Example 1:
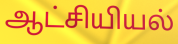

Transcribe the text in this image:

ஆட்சியியல்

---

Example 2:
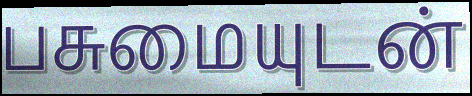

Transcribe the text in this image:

பசுமையுடன்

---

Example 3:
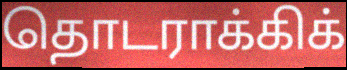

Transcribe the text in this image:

தொடராக்கிக்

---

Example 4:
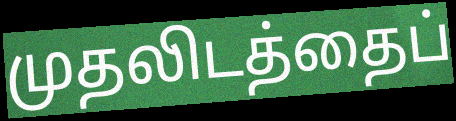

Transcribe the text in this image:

முதலிடத்தைப்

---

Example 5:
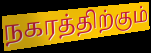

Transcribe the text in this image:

நகரத்திற்கும்